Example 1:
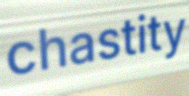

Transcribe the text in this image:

chastity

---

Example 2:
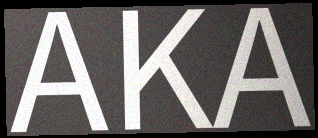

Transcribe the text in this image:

AKA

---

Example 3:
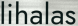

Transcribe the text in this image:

lihalas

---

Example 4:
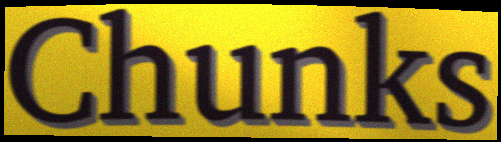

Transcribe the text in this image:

Chunks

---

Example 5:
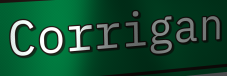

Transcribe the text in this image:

Corrigan